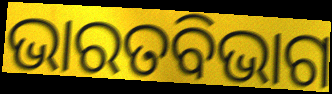
ଭାରତବିଭାଗ